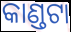
କାଣ୍ଡଟା